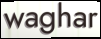
waghar